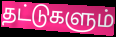
தட்டுகளும்